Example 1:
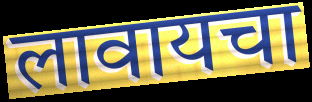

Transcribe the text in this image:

लावायचा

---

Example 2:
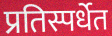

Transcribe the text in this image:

प्रतिस्पर्धेत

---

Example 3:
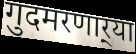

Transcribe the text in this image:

गुदमरणार्या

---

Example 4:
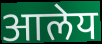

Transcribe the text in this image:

आलेय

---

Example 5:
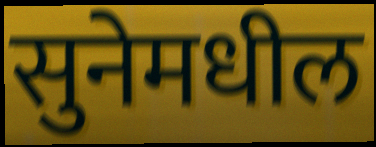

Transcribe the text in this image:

सुनेमधील